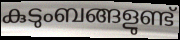
കുടുംബങ്ങളുണ്ട്